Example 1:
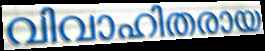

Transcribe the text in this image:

വിവാഹിതരായ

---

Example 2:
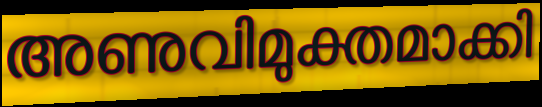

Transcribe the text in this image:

അണുവിമുക്തമാക്കി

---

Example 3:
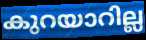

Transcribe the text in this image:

കുറയാറില്ല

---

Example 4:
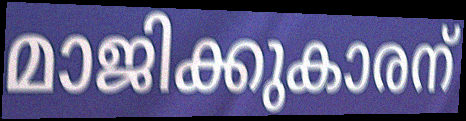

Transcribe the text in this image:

മാജിക്കുകാരന്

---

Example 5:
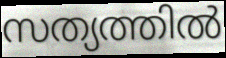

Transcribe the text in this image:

സത്യത്തിൽ